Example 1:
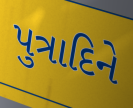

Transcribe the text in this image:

પુત્રાદિને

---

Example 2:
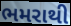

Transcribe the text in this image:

ભમરાથી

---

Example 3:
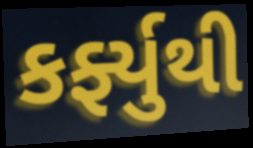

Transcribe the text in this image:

કર્ફ્યુથી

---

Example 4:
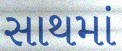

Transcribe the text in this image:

સાથમાં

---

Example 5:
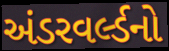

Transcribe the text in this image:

અંડરવર્લ્ડનો